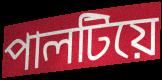
পালটিয়ে